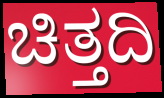
ಚಿತ್ತದಿ